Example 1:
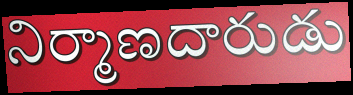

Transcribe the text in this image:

నిర్మాణదారుడు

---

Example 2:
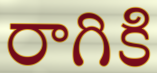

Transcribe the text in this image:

రాగికి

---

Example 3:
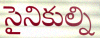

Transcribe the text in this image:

సైనికుల్ని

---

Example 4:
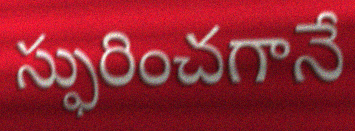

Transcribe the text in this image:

స్ఫురించగానే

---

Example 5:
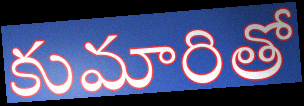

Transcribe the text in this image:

కుమారితో